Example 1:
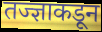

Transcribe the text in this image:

तज्ज्ञाकडून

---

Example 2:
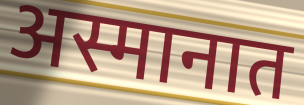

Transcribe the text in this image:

अस्मानात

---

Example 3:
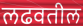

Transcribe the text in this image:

लढवतील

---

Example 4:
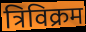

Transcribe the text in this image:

त्रिविक्रम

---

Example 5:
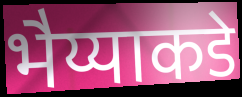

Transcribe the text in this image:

भैय्याकडे